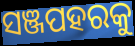
ସଞ୍ଜପହରକୁ